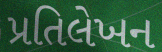
પ્રતિલેખન